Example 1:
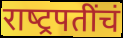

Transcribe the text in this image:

राष्ट्रपतींचं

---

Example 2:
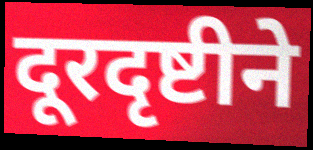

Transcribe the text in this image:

दूरदृष्टीने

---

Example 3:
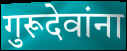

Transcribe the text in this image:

गुरूदेवांना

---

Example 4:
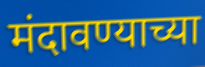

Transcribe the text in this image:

मंदावण्याच्या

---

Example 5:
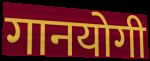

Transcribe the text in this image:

गानयोगी